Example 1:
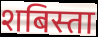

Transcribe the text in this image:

शबिस्ता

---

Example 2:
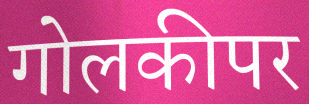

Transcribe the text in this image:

गोलकीपर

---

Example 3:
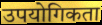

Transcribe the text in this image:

उपयोगिकता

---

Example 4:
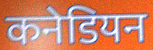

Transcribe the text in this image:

कनेडियन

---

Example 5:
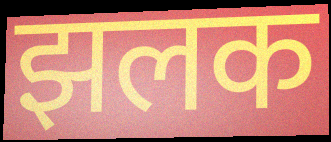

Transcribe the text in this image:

झलक